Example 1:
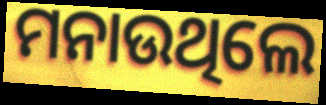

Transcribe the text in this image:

ମନାଉଥିଲେ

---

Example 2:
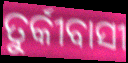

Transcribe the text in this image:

ତୁର୍କୀବାସୀ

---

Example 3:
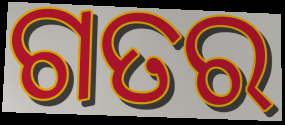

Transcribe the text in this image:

ଗତର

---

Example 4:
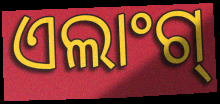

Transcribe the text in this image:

ଏଲାଂଗ୍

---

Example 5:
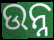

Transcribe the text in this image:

ଉନ୍ନ